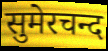
सुमेरचन्द